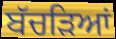
ਬੱਚੜਿਆਂ